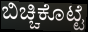
ಬಿಚ್ಚಿಕೊಟ್ಟೆ